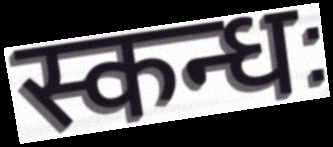
स्कन्धः